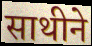
साथीने